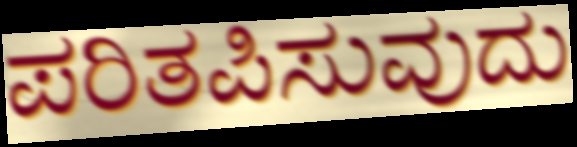
ಪರಿತಪಿಸುವುದು